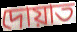
দোয়াত